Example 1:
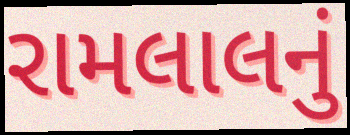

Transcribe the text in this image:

રામલાલનું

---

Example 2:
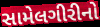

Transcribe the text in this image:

સામેલગીરીનો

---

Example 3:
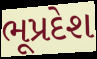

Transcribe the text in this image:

ભૂપ્રદેશ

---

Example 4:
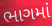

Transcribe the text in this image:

ભાગમાં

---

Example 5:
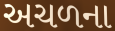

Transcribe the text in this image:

અચળના